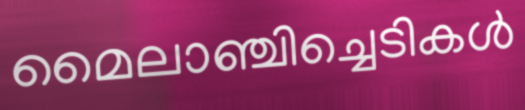
മൈലാഞ്ചിച്ചെടികൾ